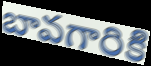
బావగారికి